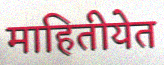
माहितीयेत